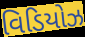
વિડિયોઝ